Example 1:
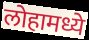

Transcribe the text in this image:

लोहामध्ये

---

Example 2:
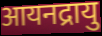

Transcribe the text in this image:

आयनद्रायु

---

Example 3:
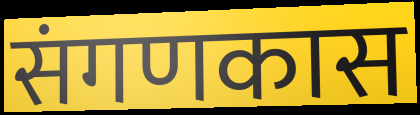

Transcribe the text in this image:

संगणकास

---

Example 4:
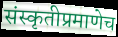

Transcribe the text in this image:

संस्कृतीप्रमाणेच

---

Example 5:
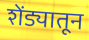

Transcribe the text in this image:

शेंड्यातून